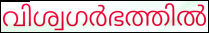
വിശ്വഗർഭത്തിൽ